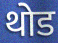
थोड